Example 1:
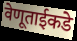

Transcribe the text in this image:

वेणूताईकडे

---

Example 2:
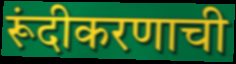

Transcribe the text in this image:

रूंदीकरणाची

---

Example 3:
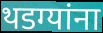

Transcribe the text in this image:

थडग्यांना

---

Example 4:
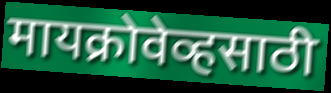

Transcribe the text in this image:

मायक्रोवेव्हसाठी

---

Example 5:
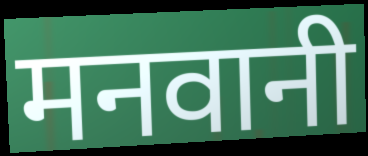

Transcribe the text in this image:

मनवानी